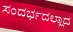
ಸಂದರ್ಭದಲ್ಲಾದ